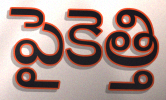
పైకెత్తి